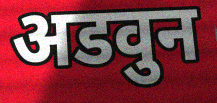
अडवुन